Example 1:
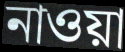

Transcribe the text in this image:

নাওয়া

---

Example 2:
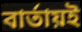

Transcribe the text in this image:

বার্তায়ই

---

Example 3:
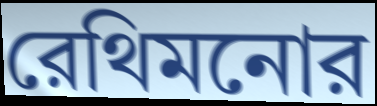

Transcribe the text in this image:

রেথিমনোর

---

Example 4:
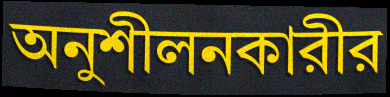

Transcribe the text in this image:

অনুশীলনকারীর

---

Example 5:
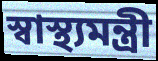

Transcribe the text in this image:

স্বাস্থ্যমন্ত্রী